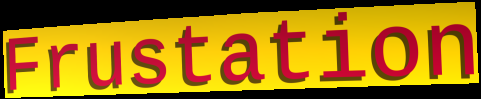
Frustation